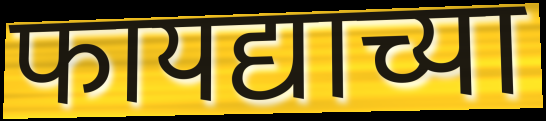
फायद्याच्या